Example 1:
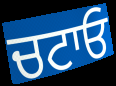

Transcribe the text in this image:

ਚਟਾਓ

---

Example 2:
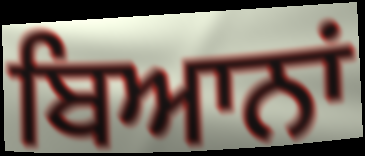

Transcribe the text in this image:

ਬਿਆਨਾਂ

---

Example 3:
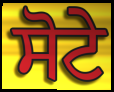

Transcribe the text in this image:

ਸੋਟੇ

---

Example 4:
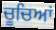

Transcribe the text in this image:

ਚੂਚਿਆਂ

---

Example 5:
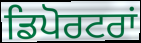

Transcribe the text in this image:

ਡਿਪੋਰਟਰਾਂ